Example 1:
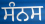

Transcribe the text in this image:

ਸੰਨਸ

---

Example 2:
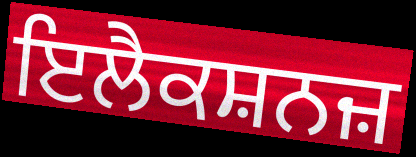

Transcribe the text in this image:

ਇਲੈਕਸ਼ਨਜ਼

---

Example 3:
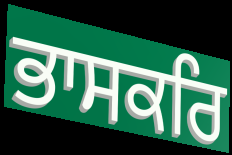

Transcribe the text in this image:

ਭਾਸਕਰਿ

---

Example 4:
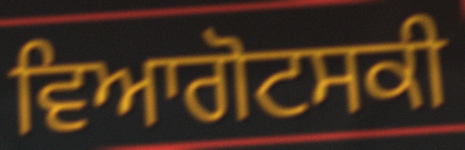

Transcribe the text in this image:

ਵਿਆਗੋਟਸਕੀ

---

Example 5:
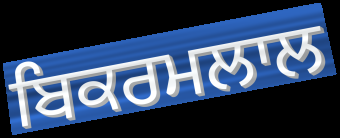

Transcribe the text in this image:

ਬਿਕਰਮਲਾਲ